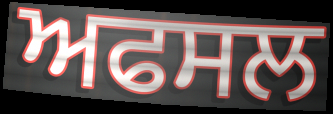
ਅਫਸਲ